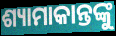
ଶ୍ୟାମାକାନ୍ତଙ୍କୁ